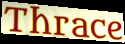
Thrace